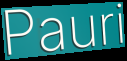
Pauri